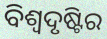
ବିଶ୍ୱଦୃଷ୍ଟିର